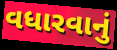
વધારવાનું